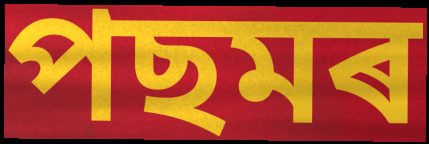
পছমৰ